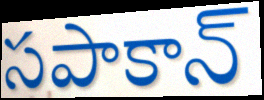
సపాకాన్